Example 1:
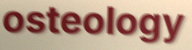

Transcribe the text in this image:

osteology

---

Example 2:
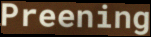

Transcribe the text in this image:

Preening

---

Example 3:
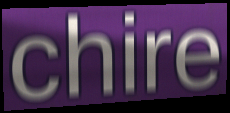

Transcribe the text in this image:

chire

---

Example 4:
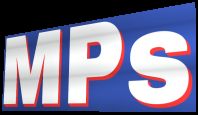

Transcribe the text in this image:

MPs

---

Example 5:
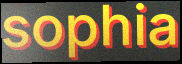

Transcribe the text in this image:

sophia